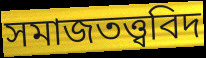
সমাজতত্ত্ববিদ